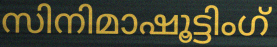
സിനിമാഷൂട്ടിംഗ്